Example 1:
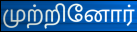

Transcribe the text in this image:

முற்றினோர்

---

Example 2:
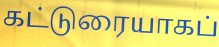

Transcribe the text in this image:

கட்டுரையாகப்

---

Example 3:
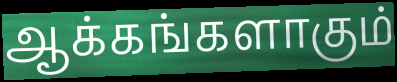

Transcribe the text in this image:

ஆக்கங்களாகும்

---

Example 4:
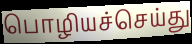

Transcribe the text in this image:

பொழியச்செய்து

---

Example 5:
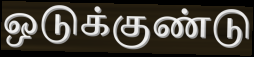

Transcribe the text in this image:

ஒடுக்குண்டு